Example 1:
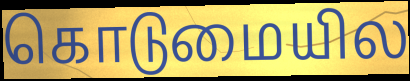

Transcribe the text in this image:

கொடுமையில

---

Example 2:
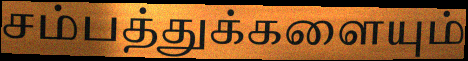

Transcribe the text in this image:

சம்பத்துக்களையும்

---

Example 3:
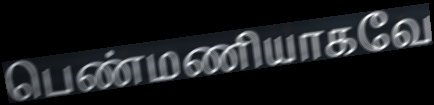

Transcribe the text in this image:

பெண்மணியாகவே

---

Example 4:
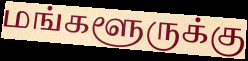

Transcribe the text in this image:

மங்களூருக்கு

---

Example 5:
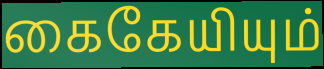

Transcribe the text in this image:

கைகேயியும்